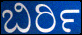
ಬಿರ್ರಿ